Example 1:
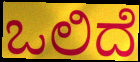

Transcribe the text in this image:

ಒಲಿದೆ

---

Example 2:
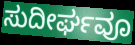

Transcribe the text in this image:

ಸುದೀರ್ಘವೂ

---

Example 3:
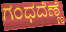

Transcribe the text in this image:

ಗಂಧದೆಣ್ಣೆ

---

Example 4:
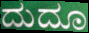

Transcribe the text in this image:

ದುದೂ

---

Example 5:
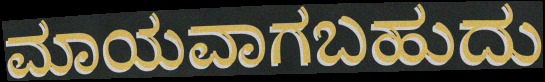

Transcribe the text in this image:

ಮಾಯವಾಗಬಹುದು